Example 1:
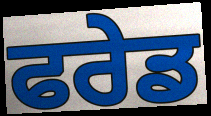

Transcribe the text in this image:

ਫਰੇਡ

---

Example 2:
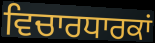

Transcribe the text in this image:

ਵਿਚਾਰਧਾਰਕਾਂ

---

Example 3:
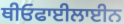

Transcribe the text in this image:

ਥੀਓਫਾਈਲਾਈਨ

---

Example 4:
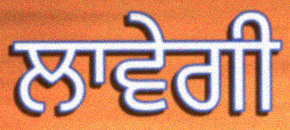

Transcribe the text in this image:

ਲਾਵੇਗੀ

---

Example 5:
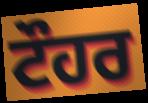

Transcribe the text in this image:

ਟੌਹਰ